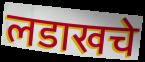
लडाखचे